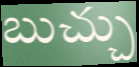
బుచ్చు